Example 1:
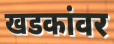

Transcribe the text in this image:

खडकांवर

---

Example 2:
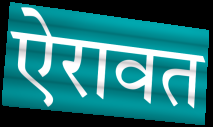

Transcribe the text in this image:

ऐरावत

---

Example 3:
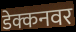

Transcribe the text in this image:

डेक्कनवर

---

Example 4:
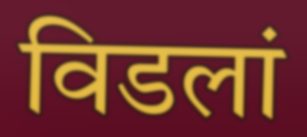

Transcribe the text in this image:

विडलां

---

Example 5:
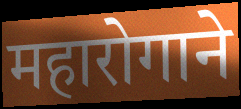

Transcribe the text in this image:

महारोगाने